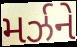
મર્ઝને